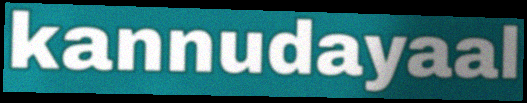
kannudayaal